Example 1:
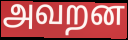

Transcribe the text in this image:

அவறன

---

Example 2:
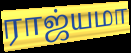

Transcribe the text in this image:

ராஜ்யமா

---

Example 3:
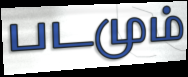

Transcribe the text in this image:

படமும்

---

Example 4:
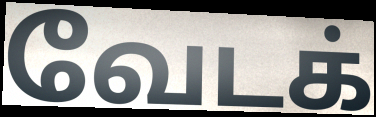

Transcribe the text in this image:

வேடக்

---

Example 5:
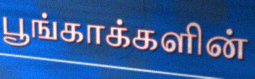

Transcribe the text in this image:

பூங்காக்களின்